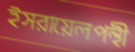
ইসরায়েলপন্থী